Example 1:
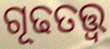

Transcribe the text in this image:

ଗୂଢତତ୍ତ୍ୱ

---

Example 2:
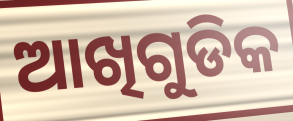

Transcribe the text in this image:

ଆଖିଗୁଡିକ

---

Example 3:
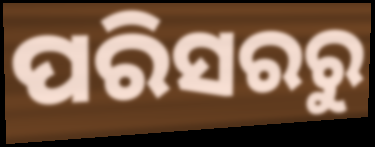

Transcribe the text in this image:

ପରିସରରୁ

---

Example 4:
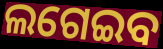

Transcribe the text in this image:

ଲଗେଇବ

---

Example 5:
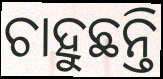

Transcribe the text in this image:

ଚାହୁଛନ୍ତି